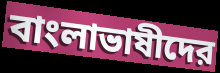
বাংলাভাষীদের